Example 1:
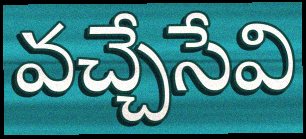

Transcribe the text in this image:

వచ్చేసేవి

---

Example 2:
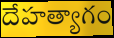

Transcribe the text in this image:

దేహత్యాగం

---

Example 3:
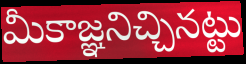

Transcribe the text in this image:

మీకాజ్ఞనిచ్చినట్టు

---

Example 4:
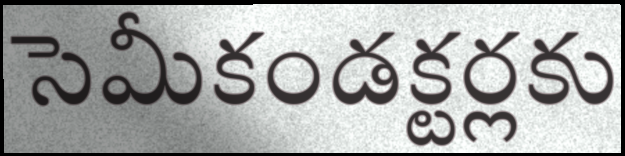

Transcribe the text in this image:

సెమీకండక్టర్లకు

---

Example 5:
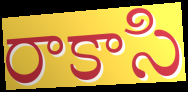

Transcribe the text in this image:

రాకాసి